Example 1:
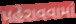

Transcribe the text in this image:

પહેરાવવામાં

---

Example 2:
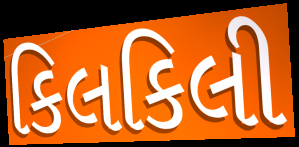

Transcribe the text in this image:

કિલકિલી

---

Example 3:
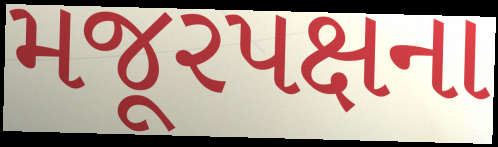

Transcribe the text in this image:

મજૂરપક્ષના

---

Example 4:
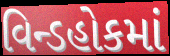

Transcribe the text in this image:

વિન્ડહોકમાં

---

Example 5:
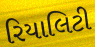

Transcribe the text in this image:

રિયાલિટી